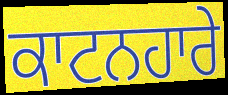
ਕਾਟਨਹਾਰੇ